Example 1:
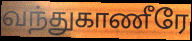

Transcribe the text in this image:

வந்துகாணீரே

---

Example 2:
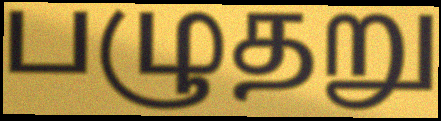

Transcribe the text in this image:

பழுதறு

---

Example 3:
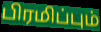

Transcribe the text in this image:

பிரமிப்பும்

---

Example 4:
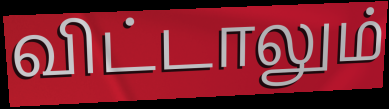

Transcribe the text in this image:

விட்டாலும்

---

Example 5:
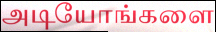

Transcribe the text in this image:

அடியோங்களை